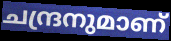
ചന്ദ്രനുമാണ്